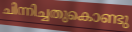
ചിന്നിച്ചതുകൊണ്ടു